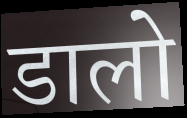
डालो